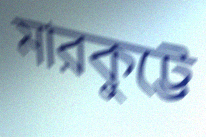
মারকুট্টে